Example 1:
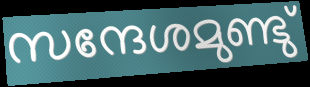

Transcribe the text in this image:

സന്ദേശമുണ്ടു്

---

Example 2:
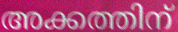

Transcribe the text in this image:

അക്കത്തിന്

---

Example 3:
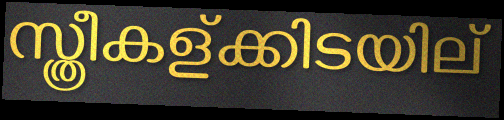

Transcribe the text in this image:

സ്ത്രീകള്ക്കിടയില്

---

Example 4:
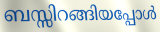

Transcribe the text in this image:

ബസ്സിറങ്ങിയപ്പോൾ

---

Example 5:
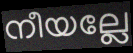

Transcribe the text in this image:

നീയല്ലേ